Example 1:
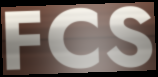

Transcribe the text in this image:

FCS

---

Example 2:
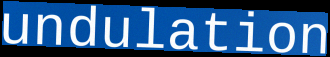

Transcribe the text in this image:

undulation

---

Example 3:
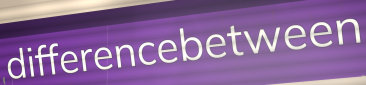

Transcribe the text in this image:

differencebetween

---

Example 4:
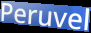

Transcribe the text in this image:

Peruvel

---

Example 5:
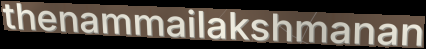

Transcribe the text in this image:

thenammailakshmanan